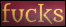
fucks